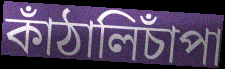
কাঁঠালিচাঁপা